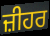
ਜ਼ੀਹਰ